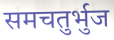
समचतुर्भुज